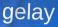
gelay